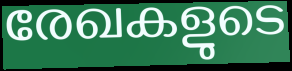
രേഖകളുടെ